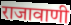
राजावाणी